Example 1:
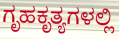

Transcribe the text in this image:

ಗೃಹಕೃತ್ಯಗಳಲ್ಲಿ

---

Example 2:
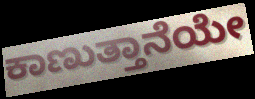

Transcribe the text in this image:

ಕಾಣುತ್ತಾನೆಯೇ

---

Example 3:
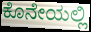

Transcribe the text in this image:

ಕೊನೇಯಲ್ಲಿ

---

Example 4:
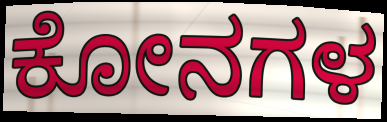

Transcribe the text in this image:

ಕೋನಗಳ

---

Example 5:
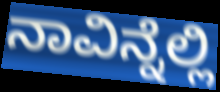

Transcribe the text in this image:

ನಾವಿನ್ನೆಲ್ಲಿ